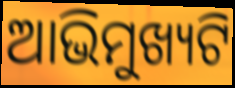
ଆଭିମୁଖ୍ୟଟି